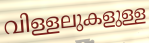
വിള്ളലുകളുള്ള